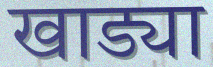
खाड्या